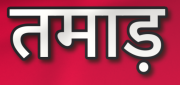
तमाड़